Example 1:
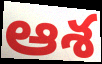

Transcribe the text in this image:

ఆశ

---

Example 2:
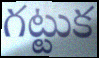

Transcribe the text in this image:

గట్టుక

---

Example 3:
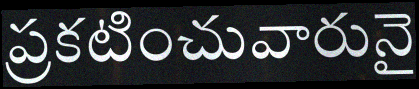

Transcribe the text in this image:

ప్రకటించువారునై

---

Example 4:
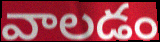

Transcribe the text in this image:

వాలడం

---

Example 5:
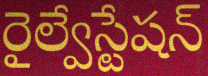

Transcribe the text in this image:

రైల్వేస్టేషన్